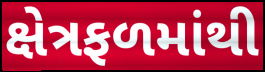
ક્ષેત્રફળમાંથી